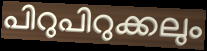
പിറുപിറുക്കലും